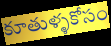
కూతుళ్ళకోసం